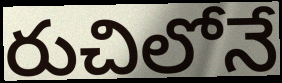
రుచిలోనే